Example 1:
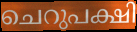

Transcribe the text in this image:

ചെറുപക്ഷി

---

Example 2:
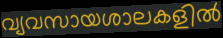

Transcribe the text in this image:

വ്യവസായശാലകളിൽ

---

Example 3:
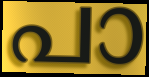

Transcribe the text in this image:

പാ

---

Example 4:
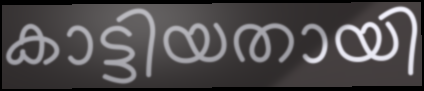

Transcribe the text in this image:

കാട്ടിയതായി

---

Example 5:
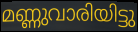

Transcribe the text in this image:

മണ്ണുവാരിയിട്ടു